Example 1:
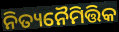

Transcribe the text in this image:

ନିତ୍ୟନୈମିତ୍ତିକ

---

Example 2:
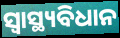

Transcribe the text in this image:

ସ୍ୱାସ୍ଥ୍ୟବିଧାନ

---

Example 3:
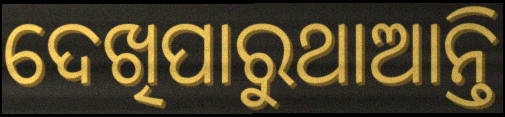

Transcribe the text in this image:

ଦେଖିପାରୁଥାଆନ୍ତି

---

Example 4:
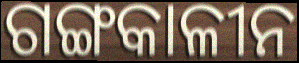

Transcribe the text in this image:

ଗଙ୍ଗକାଳୀନ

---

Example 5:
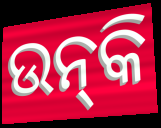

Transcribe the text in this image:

ଉନ୍‌କି